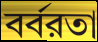
বর্বরতা